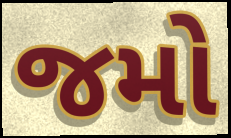
જમો